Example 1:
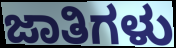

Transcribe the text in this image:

ಜಾತಿಗಳು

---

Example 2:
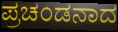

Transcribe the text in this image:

ಪ್ರಚಂಡನಾದ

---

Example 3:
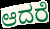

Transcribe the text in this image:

ಆದರೆ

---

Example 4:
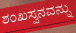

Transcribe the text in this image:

ಶಂಖಸ್ವನವನ್ನು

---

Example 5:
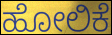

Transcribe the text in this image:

ಹೋಲಿಕೆ